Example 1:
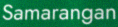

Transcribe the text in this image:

Samarangan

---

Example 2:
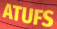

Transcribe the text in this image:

ATUFS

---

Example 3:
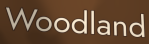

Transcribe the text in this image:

Woodland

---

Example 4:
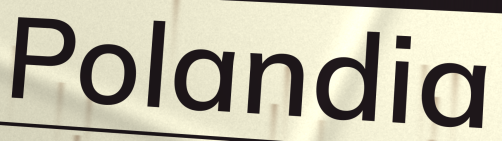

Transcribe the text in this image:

Polandia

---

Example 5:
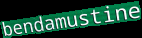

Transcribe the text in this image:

bendamustine